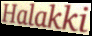
Halakki